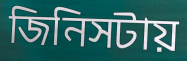
জিনিসটায়